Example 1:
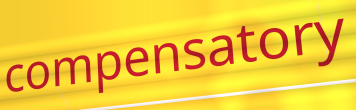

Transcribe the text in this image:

compensatory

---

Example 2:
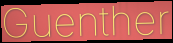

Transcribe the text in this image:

Guenther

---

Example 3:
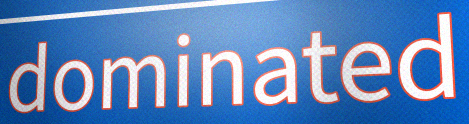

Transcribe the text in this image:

dominated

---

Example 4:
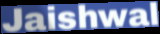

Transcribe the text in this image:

Jaishwal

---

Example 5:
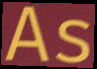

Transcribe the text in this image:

As